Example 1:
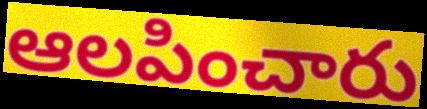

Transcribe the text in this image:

ఆలపించారు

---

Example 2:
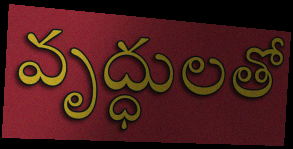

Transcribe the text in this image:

వృద్ధులతో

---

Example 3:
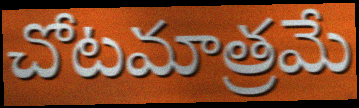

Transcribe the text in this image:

చోటమాత్రమే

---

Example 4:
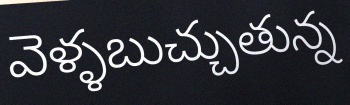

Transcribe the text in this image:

వెళ్ళబుచ్చుతున్న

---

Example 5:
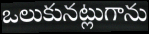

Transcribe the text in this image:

ఒలుకునట్లుగాను